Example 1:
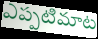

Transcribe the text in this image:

ఎప్పటిమాట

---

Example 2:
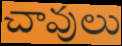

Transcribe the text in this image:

చావులు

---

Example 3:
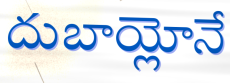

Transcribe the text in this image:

దుబాయ్లోనే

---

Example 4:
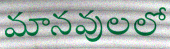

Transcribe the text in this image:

మానవులలో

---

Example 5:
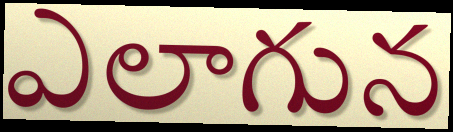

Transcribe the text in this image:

ఎలాగున